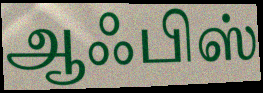
ஆஃபிஸ்